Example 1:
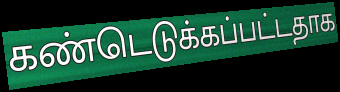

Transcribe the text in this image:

கண்டெடுக்கப்பட்டதாக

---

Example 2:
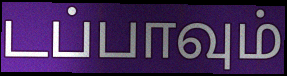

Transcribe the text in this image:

டப்பாவும்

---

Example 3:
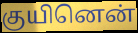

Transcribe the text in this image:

குயினென்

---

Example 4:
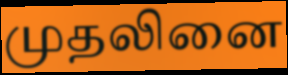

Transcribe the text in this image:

முதலினை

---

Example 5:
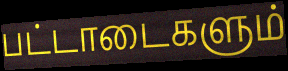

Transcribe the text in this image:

பட்டாடைகளும்